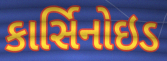
કાર્સિનોઇડ